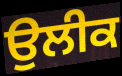
ਉਲੀਕ